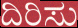
ದಿರಿಸು